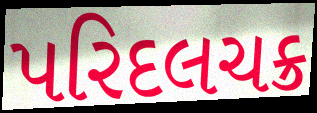
પરિદલચક્ર